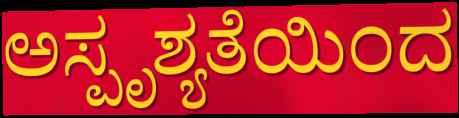
ಅಸ್ಪೃಶ್ಯತೆಯಿಂದ